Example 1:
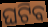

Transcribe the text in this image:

ଘଟିବ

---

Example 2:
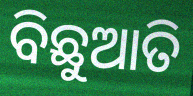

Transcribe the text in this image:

ବିଛୁଆତି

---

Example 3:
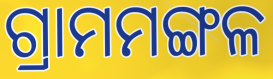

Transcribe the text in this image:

ଗ୍ରାମମଙ୍ଗଳ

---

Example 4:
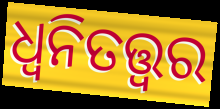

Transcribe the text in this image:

ଧ୍ଵନିତତ୍ତ୍ଵର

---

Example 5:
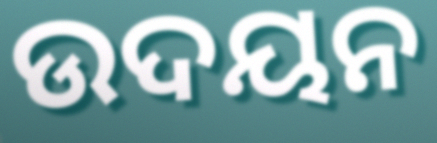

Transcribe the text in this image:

ଉଦୟନ